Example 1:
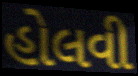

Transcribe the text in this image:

હોલવી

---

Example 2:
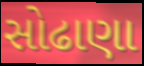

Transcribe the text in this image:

સોઢાણા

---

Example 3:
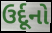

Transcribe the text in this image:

ઉર્દૂનો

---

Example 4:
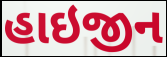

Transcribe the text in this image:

હાઇજીન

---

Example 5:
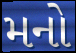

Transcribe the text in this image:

મનો